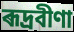
ৰূদ্ৰবীণা